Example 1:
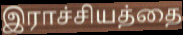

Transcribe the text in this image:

இராச்சியத்தை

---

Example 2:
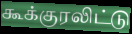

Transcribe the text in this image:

கூக்குரலிட்டு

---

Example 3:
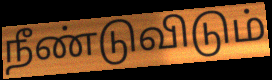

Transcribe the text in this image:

நீண்டுவிடும்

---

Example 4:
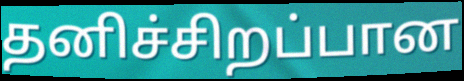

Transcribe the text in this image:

தனிச்சிறப்பான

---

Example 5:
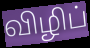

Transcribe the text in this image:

விழிப்